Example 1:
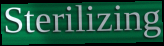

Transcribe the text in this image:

Sterilizing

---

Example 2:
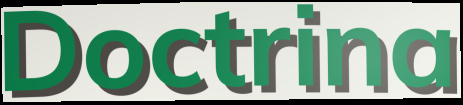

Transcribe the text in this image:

Doctrina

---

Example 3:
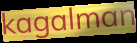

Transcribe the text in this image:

kagalman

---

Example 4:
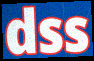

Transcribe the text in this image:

dss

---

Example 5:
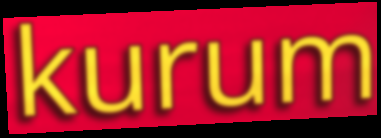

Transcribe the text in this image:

kurum